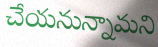
చేయనున్నామని